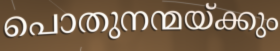
പൊതുനന്മയ്ക്കും